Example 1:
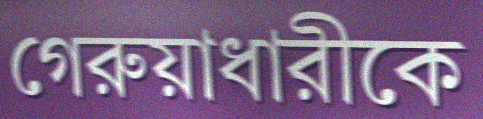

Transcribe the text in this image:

গেরুয়াধারীকে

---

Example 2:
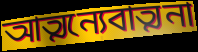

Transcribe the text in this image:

আত্মন্যেবাত্মনা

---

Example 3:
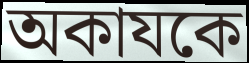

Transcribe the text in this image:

অকাযকে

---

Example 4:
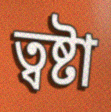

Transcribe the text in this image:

ত্বষ্টা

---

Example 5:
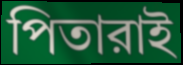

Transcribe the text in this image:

পিতারাই